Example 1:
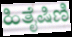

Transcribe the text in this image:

ಹಿತೈಷಿಣಿ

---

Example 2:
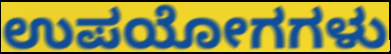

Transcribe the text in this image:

ಉಪಯೋಗಗಳು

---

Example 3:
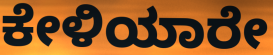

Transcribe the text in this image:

ಕೇಳಿಯಾರೇ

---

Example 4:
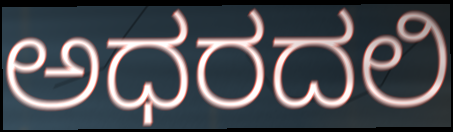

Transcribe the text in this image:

ಅಧರದಲಿ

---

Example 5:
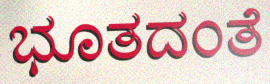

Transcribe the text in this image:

ಭೂತದಂತೆ